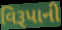
વિરૂપાની